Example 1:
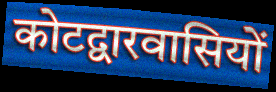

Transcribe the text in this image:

कोटद्वारवासियों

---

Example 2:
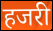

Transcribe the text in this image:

हजरी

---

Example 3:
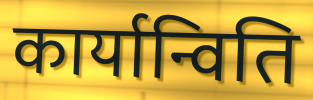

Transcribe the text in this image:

कार्यान्विति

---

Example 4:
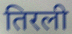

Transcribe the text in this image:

तिरली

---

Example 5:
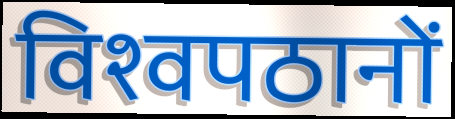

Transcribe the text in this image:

विश्वपठानों